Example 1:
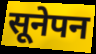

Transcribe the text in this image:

सूनेपन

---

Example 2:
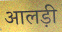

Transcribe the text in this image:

आलड़ी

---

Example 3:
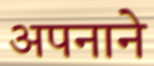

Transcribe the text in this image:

अपनाने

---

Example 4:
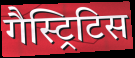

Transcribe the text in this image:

गैस्ट्रिटिस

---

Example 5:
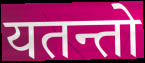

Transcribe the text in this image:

यतन्तो